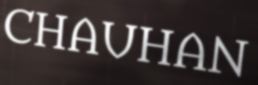
CHAUHAN